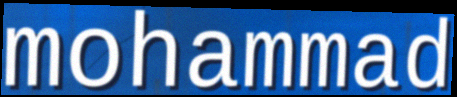
mohammad